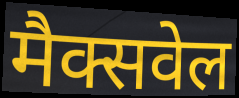
मैक्सवेल